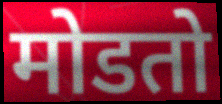
मोडतो